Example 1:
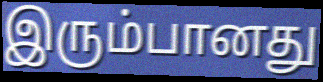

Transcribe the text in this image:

இரும்பானது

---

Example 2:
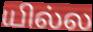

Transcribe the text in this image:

யில்ல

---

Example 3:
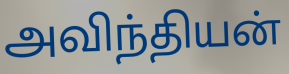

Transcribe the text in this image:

அவிந்தியன்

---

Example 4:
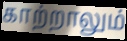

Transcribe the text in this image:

காற்றாலும்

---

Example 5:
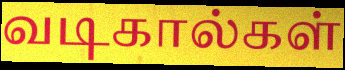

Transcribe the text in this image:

வடிகால்கள்